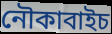
নৌকাবাইচ